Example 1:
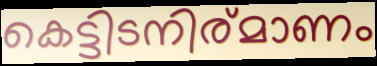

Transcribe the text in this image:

കെട്ടിടനിര്മാണം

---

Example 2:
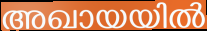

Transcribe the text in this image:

അഖായയിൽ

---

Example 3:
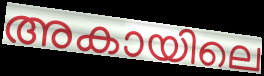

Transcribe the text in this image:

അകായിലെ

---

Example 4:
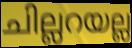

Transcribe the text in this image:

ചില്ലറയല്ല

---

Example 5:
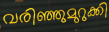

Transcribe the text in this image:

വരിഞ്ഞുമുറുക്കി